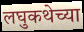
लघुकथेच्या